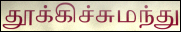
தூக்கிச்சுமந்து